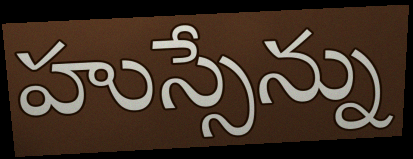
హుస్సేన్ను